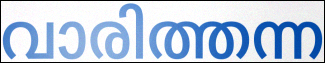
വാരിത്തന്ന